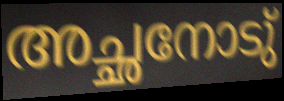
അച്ഛനോടു്